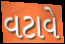
વટાવે